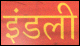
इंडली